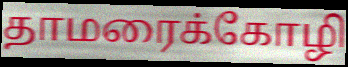
தாமரைக்கோழி